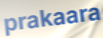
prakaara